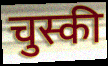
चुस्की